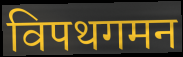
विपथगमन